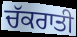
ਚੱਕਰਾਤੀ